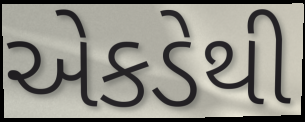
એકડેથી